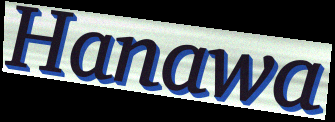
Hanawa